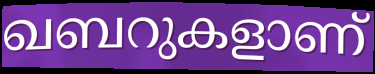
ഖബറുകളാണ്